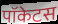
पॉकेटस